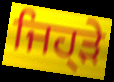
ਜਿਹ੍ੜੇ